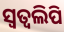
ସ୍ଵତ୍ଵଲିପି